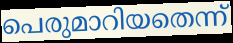
പെരുമാറിയതെന്ന്